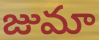
జుమా